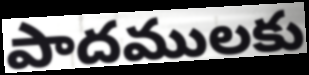
పాదములకు